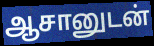
ஆசானுடன்